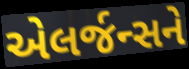
એલર્જન્સને